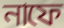
নাফে